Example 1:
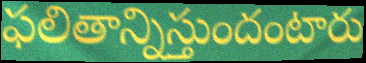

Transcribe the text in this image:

ఫలితాన్నిస్తుందంటారు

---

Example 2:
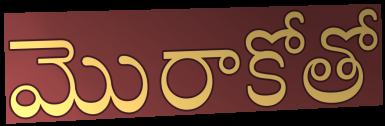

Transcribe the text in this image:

మొరాకోతో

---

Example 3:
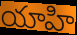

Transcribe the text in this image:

యాహి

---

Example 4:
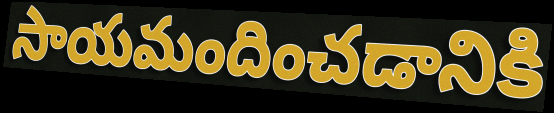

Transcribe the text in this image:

సాయమందించడానికి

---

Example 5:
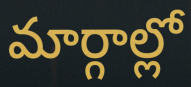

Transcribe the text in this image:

మార్గాల్లో